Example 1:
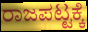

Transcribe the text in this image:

ರಾಜಪಟ್ಟಕ್ಕೆ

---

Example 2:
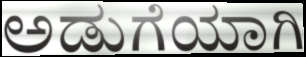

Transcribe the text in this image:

ಅಡುಗೆಯಾಗಿ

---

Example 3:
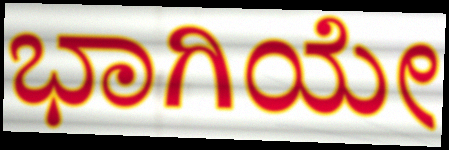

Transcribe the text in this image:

ಭಾಗಿಯೇ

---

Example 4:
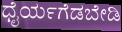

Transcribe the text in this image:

ಧೈರ್ಯಗೆಡಬೇಡಿ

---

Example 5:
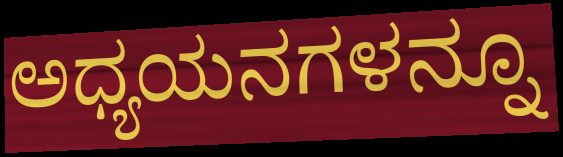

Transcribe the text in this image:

ಅಧ್ಯಯನಗಳನ್ನೂ